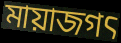
মায়াজগৎ